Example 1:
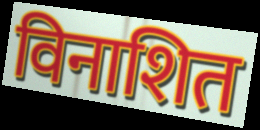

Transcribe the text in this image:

विनाशित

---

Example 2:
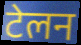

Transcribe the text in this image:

टेलन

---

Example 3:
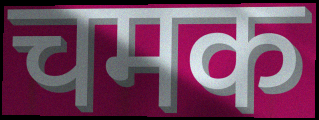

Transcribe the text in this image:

चमक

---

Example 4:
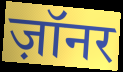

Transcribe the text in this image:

ज़ॉनर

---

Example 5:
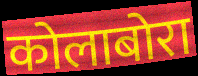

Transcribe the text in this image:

कोलाबोरा